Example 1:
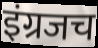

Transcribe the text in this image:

इंग्रजच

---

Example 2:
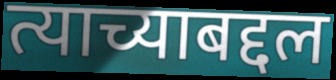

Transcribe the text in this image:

त्याच्याबद्दल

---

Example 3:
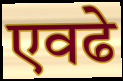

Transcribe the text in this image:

एवढे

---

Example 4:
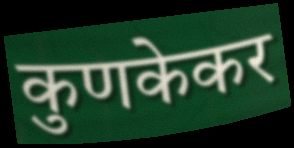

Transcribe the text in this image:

कुणकेकर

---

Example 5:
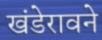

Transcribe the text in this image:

खंडेरावने